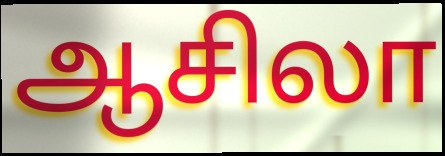
ஆசிலா